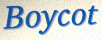
Boycot